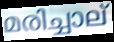
മരിച്ചാല്